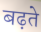
बढ़ते